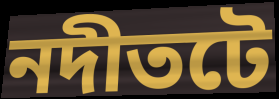
নদীতটে